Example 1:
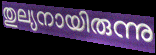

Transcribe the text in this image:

തുല്യനായിരുന്നു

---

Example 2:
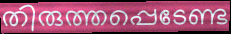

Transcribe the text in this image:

തിരുത്തപ്പെടേണ്ട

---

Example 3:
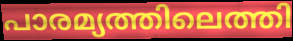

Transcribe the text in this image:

പാരമ്യത്തിലെത്തി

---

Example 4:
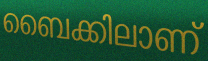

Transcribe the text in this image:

ബൈക്കിലാണ്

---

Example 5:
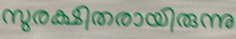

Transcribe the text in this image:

സുരക്ഷിതരായിരുന്നു